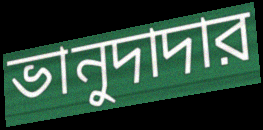
ভানুদাদার